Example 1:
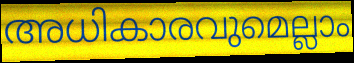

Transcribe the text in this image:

അധികാരവുമെല്ലാം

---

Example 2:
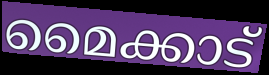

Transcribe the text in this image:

മൈക്കാട്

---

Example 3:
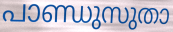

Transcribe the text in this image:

പാണ്ഡുസുതാ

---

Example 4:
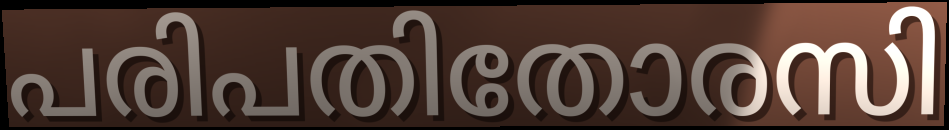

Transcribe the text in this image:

പരിപതിതോരസി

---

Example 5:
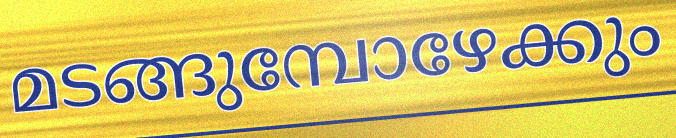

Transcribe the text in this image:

മടങ്ങുമ്പോഴേക്കും